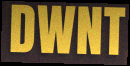
DWNT